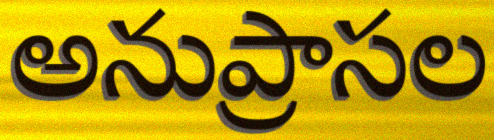
అనుప్రాసల